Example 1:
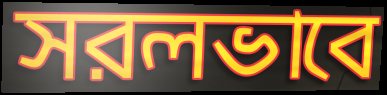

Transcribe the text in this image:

সরলভাবে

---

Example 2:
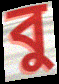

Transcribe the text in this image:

বু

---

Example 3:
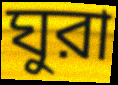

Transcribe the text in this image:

ঘুরা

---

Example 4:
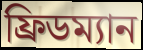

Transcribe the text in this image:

ফ্রিডম্যান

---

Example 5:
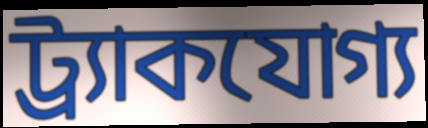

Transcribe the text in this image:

ট্র্যাকযোগ্য